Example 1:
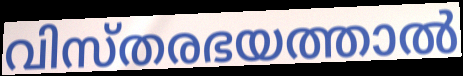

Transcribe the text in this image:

വിസ്തരഭയത്താൽ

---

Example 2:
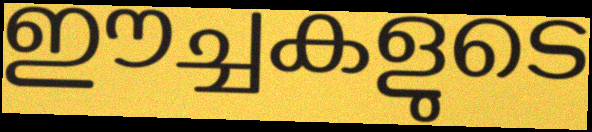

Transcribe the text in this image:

ഈച്ചകളുടെ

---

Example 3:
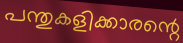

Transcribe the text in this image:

പന്തുകളിക്കാരന്റെ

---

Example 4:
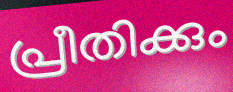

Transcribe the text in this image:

പ്രീതിക്കും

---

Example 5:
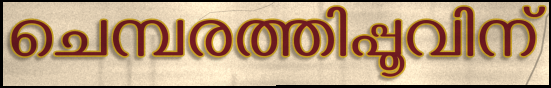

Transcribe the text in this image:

ചെമ്പരത്തിപ്പൂവിന്